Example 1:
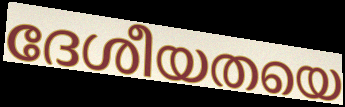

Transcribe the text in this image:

ദേശീയതയെ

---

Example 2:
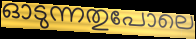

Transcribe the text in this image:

ഓടുന്നതുപോലെ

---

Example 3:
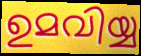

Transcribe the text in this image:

ഉമവിയ്യ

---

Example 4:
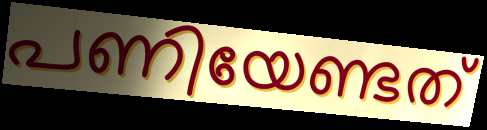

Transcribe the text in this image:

പണിയേണ്ടത്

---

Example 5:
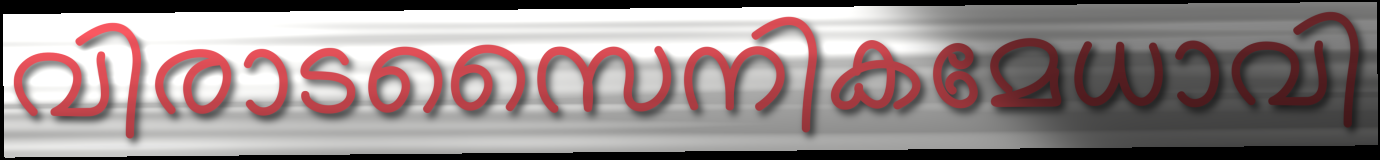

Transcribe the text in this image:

വിരാടസൈനികമേധാവി